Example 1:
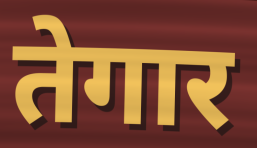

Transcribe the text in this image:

तेगार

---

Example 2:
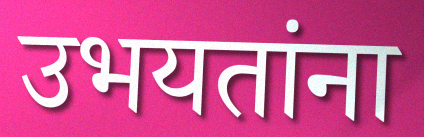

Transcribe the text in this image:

उभयतांना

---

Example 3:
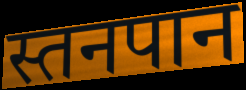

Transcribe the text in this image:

स्तनपान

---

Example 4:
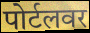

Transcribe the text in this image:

पोर्टलवर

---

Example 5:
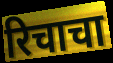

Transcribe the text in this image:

रिचाचा